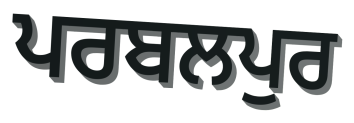
ਪਰਬਲਪੁਰ